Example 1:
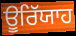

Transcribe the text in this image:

ਊਰਿੱਯਾਹ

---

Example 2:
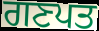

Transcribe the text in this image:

ਗਣਪਤ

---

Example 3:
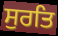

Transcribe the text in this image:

ਸੁਰਤਿ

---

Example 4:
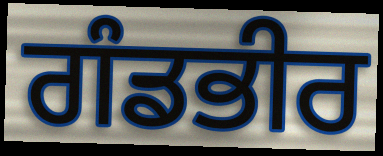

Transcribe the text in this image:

ਗੰਡਭੀਰ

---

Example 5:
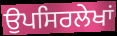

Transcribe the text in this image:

ਉਪਸਿਰਲੇਖਾਂ